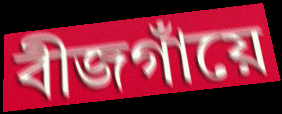
বীজগাঁয়ে